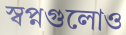
স্বপ্নগুলোও